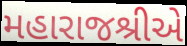
મહારાજશ્રીએ